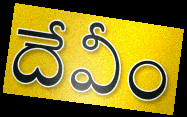
దేవీం